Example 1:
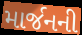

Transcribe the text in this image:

માર્જનની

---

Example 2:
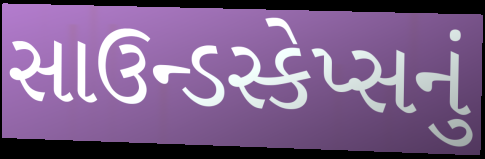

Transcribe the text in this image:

સાઉન્ડસ્કેપ્સનું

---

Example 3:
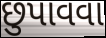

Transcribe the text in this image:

છુપાવવા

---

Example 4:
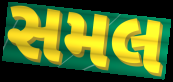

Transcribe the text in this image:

સમલ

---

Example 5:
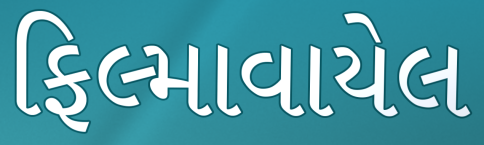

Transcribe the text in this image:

ફિલ્માવાયેલ